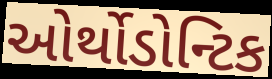
ઓર્થોડોન્ટિક